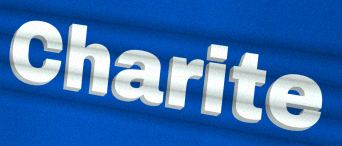
Charite